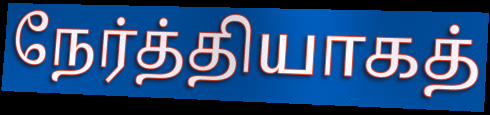
நேர்த்தியாகத்